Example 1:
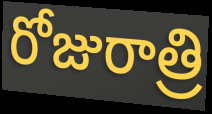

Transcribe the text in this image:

రోజురాత్రి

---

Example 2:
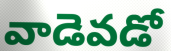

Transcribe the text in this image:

వాడెవడో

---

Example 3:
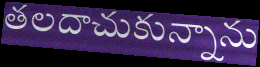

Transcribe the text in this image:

తలదాచుకున్నాను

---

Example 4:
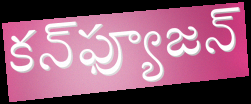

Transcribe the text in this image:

కన్‌ఫ్యూజన్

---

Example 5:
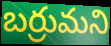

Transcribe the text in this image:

బర్రుమని